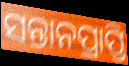
ସନ୍ତାନପ୍ରାପ୍ତି